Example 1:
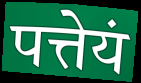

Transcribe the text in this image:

पत्तेयं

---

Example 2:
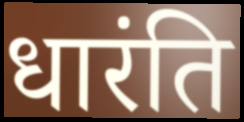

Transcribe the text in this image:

धारंति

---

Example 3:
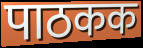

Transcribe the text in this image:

पाठकक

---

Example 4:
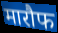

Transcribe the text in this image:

मारौफ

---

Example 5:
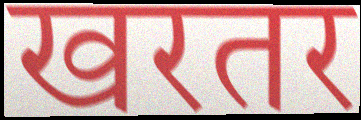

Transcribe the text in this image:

खरतर